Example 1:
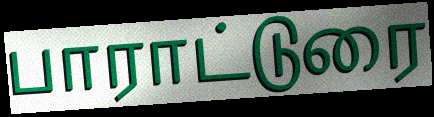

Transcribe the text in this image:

பாராட்டுரை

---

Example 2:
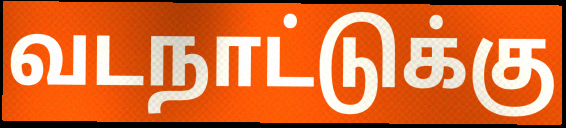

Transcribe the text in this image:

வடநாட்டுக்கு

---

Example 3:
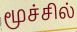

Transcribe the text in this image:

மூச்சில்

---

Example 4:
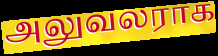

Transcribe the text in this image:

அலுவலராக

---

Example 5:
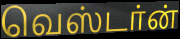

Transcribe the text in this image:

வெஸ்டர்ன்